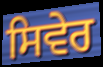
ਸਿਵੇਰ